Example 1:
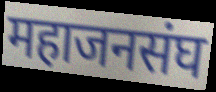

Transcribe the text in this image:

महाजनसंघ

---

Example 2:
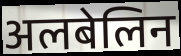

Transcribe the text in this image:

अलबेलिन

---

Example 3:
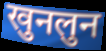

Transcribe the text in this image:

खुनलुन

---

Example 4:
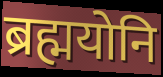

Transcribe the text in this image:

ब्रह्मयोनि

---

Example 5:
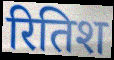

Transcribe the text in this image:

रितिश